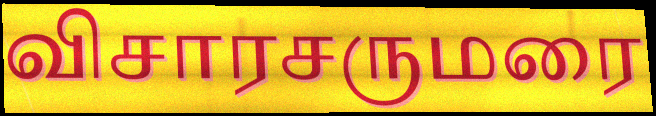
விசாரசருமரை